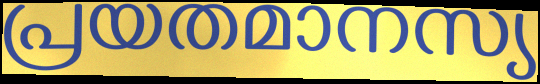
പ്രയതമാനസ്യ